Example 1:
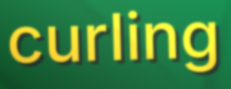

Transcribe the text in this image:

curling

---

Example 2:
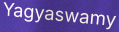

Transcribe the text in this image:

Yagyaswamy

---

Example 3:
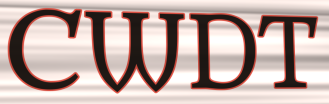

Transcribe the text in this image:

CWDT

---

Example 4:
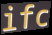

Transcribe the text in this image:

ifc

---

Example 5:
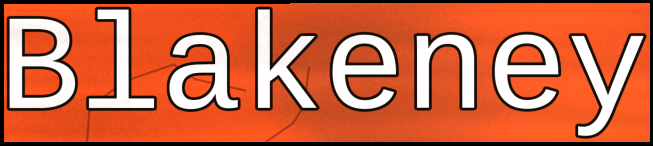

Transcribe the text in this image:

Blakeney